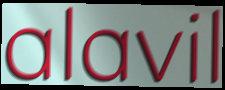
alavil